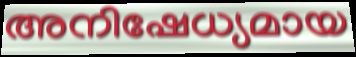
അനിഷേധ്യമായ